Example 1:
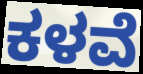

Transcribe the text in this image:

ಕಳವೆ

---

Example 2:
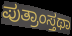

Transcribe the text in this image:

ಪುತ್ರಾಂಸ್ತಥಾ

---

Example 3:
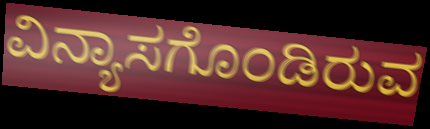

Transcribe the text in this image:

ವಿನ್ಯಾಸಗೊಂಡಿರುವ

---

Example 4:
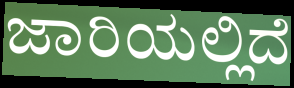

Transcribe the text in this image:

ಜಾರಿಯಲ್ಲಿದೆ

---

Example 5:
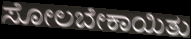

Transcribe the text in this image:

ಸೋಲಬೇಕಾಯಿತು